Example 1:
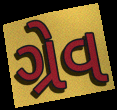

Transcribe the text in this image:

ગ્રેવ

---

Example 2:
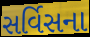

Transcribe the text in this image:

સર્વિસના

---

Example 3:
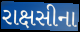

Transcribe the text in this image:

રાક્ષસીના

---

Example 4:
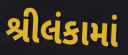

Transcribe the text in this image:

શ્રીલંકામાં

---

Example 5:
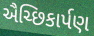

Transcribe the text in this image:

ઐચ્છિકાર્પણ